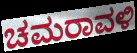
ಚಮರಾವಳಿ